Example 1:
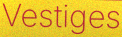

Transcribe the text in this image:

Vestiges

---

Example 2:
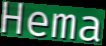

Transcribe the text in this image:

Hema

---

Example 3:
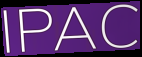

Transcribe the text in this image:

IPAC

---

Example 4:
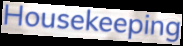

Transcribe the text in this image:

Housekeeping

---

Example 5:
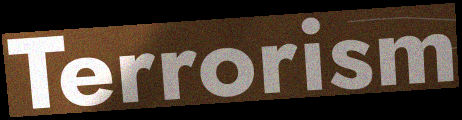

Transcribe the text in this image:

Terrorism